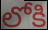
లోకి